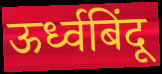
ऊर्ध्वबिंदू